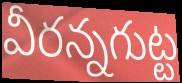
వీరన్నగుట్ట